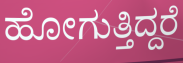
ಹೋಗುತ್ತಿದ್ದರೆ